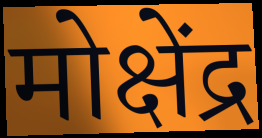
मोक्षेंद्र